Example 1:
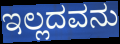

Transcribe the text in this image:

ಇಲ್ಲದವನು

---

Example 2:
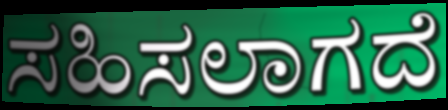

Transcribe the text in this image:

ಸಹಿಸಲಾಗದೆ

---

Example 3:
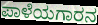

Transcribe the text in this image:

ಪಾಳೆಯಗಾರನ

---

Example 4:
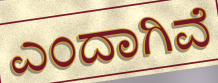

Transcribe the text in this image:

ಎಂದಾಗಿವೆ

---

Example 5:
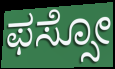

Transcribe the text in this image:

ಫಸ್ಸೋ